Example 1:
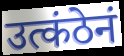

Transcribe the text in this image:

उत्कंठेनं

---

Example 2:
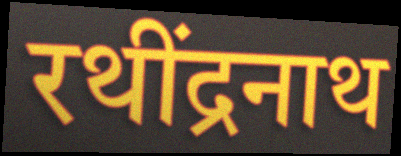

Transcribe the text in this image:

रथींद्रनाथ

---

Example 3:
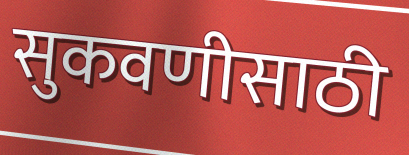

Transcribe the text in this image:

सुकवणीसाठी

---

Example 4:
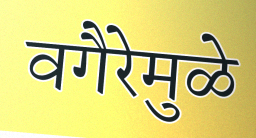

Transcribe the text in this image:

वगैरेमुळे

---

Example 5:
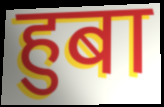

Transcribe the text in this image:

हुबा